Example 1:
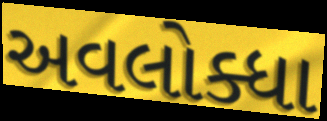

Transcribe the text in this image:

અવલોક્ધા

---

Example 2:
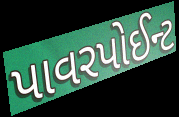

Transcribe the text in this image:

પાવરપોઈન્ટ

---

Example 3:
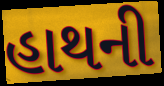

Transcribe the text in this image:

હાથની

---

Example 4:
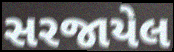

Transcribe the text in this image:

સરજાયેલ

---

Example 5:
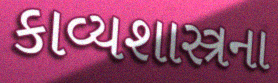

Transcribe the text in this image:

કાવ્યશાસ્ત્રના